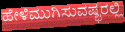
ಹೇಳಿಮುಗಿಸುವಷ್ಟರಲ್ಲಿ